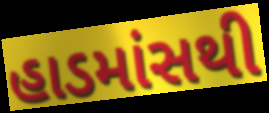
હાડમાંસથી